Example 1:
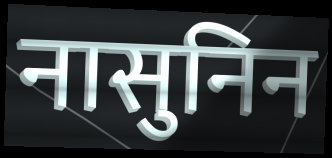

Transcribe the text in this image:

नासुनिन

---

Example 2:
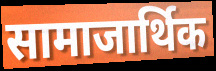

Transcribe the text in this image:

सामाजार्थिक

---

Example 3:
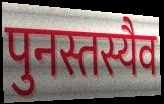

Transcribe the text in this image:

पुनस्तस्यैव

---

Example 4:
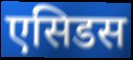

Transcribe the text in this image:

एसिडस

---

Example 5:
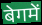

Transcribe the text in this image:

बेगमें